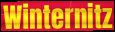
Winternitz